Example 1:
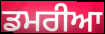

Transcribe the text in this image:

ਡਮਰੀਆ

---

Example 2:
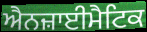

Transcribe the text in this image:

ਐਨਜ਼ਾਈਮੈਟਿਕ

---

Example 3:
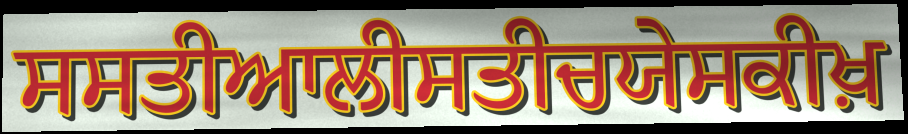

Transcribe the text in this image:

ਸਸਤੀਆਲੀਸਤੀਚਯੇਸਕੀਖ਼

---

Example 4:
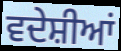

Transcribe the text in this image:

ਵਦੇਸ਼ੀਆਂ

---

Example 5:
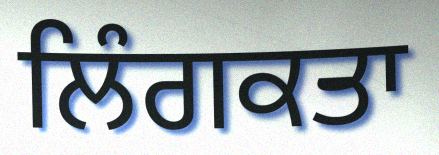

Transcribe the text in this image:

ਲਿੰਗਕਤਾ